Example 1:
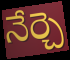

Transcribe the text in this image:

నేర్చె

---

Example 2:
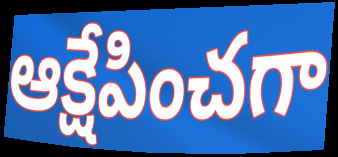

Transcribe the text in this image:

ఆక్షేపించగా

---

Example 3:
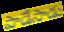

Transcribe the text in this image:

పాడేసాడు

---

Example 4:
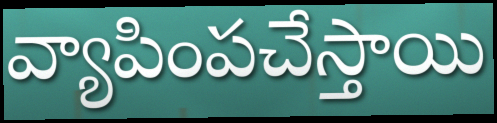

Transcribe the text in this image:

వ్యాపింపచేస్తాయి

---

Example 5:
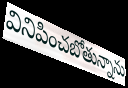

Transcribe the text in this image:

వినిపించబోతున్నాను